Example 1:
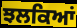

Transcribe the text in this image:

ਝਲਕਿਆਂ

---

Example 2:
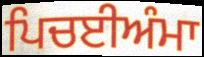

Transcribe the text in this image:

ਪਿਚਈਅੰਮਾ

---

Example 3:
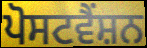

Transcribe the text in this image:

ਪੋਸਟਵੈਂਸ਼ਨ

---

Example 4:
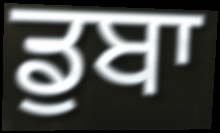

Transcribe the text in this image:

ਡੁਬਾ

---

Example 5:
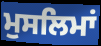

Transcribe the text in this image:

ਮੁਸਲਿਮਾਂ